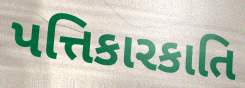
પત્તિકારકાતિ